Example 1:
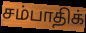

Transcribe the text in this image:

சம்பாதிக்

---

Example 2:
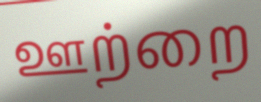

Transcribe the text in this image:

ஊற்றை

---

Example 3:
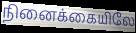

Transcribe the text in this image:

நினைக்கையிலே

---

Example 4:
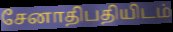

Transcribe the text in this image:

சேனாதிபதியிடம்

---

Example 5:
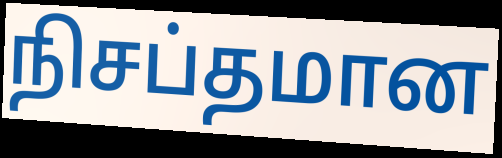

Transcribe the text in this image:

நிசப்தமான